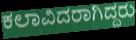
ಕಲಾವಿದರಾಗಿದ್ದರು